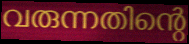
വരുന്നതിന്റെ